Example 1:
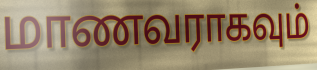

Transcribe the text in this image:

மாணவராகவும்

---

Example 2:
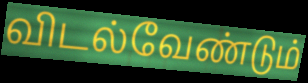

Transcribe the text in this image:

விடல்வேண்டும்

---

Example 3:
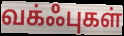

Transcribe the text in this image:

வக்ஃபுகள்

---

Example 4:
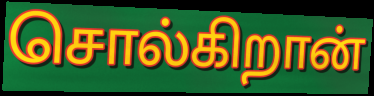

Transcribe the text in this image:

சொல்கிறான்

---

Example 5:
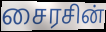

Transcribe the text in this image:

சைரசின்